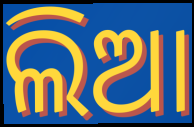
ଲିଆ